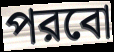
পরবো